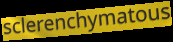
sclerenchymatous